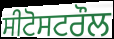
ਸੀਟੋਸਟਰੌਲ